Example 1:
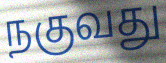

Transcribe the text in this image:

நகுவது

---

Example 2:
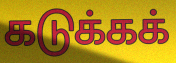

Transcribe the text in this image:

கடுக்கக்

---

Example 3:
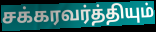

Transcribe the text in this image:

சக்கரவர்த்தியும்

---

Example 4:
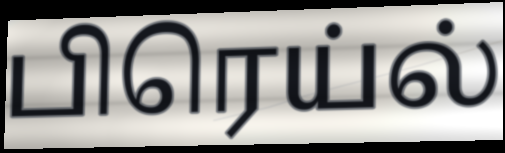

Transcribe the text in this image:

பிரெய்ல்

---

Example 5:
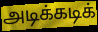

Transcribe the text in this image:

அடிக்கடிக்